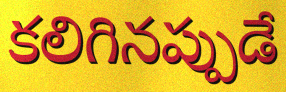
కలిగినప్పుడే